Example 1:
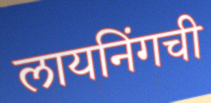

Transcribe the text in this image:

लायनिंगची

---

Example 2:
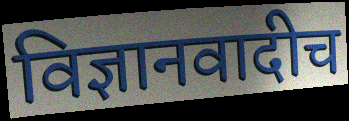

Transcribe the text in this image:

विज्ञानवादीच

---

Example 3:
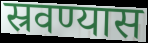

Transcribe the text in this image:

स्रवण्यास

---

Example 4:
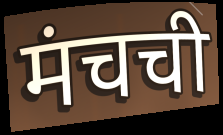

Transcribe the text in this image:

मंचची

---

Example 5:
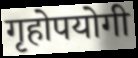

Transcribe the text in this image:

गृहोपयोगी